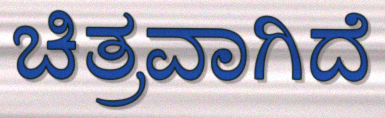
ಚಿತ್ರವಾಗಿದೆ